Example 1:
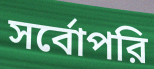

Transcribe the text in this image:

সর্বোপরি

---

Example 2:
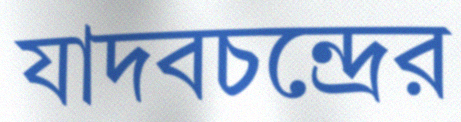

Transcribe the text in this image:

যাদবচন্দ্রের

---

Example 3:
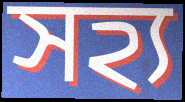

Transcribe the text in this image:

সহ্য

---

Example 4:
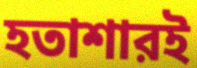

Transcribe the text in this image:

হতাশারই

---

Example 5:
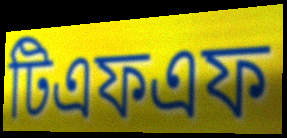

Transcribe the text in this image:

টিএফএফ